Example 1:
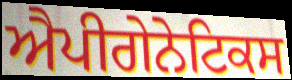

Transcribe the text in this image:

ਐਪੀਗੇਨੇਟਿਕਸ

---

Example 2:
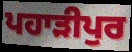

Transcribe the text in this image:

ਪਹਾੜੀਪੁਰ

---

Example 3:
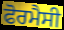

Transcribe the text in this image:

ਫੋਰਮੈਸੀ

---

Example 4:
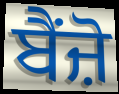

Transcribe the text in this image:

ਬੈਂਜ਼ੋ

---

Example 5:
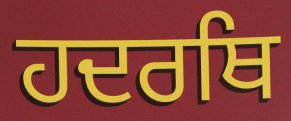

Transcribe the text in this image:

ਹਦਰਥਿ